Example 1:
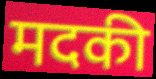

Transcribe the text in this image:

मदकी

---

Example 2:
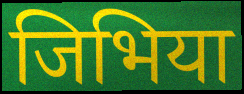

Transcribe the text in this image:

जिभिया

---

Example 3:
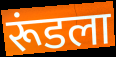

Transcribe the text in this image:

रूंडला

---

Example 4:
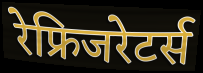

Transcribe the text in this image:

रेफ्रिजरेटर्स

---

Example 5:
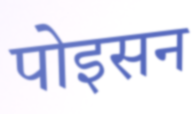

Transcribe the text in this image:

पोइसन